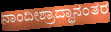
ನಾಂದೀಶ್ರಾದ್ಧಾನಂತರ